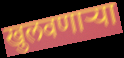
खुलवणाऱ्या